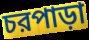
চরপাড়া